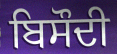
ਬਿਸੌਦੀ